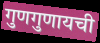
गुणगुणायची